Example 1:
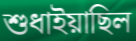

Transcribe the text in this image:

শুধাইয়াছিল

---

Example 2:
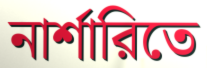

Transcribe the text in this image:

নার্শারিতে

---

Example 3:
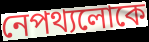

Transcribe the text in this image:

নেপথ্যলোকে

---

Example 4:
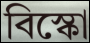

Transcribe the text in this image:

বিস্কো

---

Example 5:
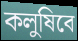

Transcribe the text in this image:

কলুষিবে